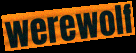
werewolf